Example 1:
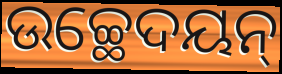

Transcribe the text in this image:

ଉଚ୍ଛେଦୟନ୍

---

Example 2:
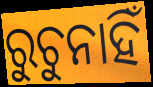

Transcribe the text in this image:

ରୁଚୁନାହିଁ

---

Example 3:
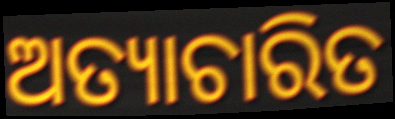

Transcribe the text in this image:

ଅତ୍ୟାଚାରିତ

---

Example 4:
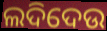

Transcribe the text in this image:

ଲଦିଦେଉ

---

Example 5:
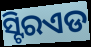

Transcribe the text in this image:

ସ୍ଟିରଏଡ